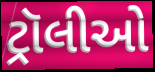
ટ્રૉલીઓ